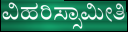
ವಿಹರಿಸ್ಸಾಮೀತಿ